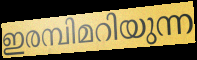
ഇരമ്പിമറിയുന്ന